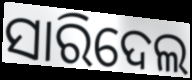
ସାରିଦେଲ